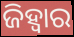
ଜିହ୍ଵାର